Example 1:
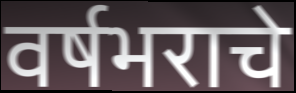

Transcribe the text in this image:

वर्षभराचे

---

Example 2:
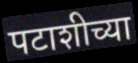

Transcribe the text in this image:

पटाशीच्या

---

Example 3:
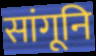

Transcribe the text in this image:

सांगूनि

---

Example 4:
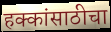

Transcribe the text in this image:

हक्कांसाठीचा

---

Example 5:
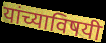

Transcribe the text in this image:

यांच्याविषयी